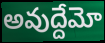
అవుద్దేమో